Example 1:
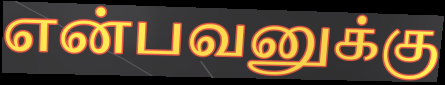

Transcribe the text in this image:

என்பவனுக்கு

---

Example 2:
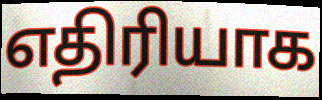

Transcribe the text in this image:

எதிரியாக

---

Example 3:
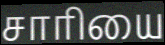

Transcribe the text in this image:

சாரியை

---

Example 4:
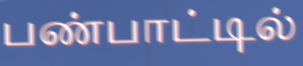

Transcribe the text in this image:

பண்பாட்டில்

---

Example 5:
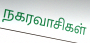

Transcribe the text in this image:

நகரவாசிகள்